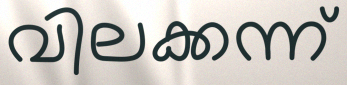
വിലക്കന്ന്